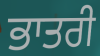
ਭਾਤਰੀ